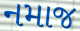
નમાજ